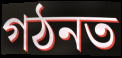
গঠনত